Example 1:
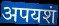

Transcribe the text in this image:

अपयशं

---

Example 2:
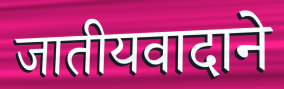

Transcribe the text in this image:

जातीयवादाने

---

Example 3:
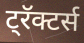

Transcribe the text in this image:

ट्रॅक्टर्स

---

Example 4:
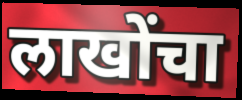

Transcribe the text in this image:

लाखोंचा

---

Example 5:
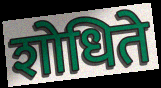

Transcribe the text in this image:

शोधिते